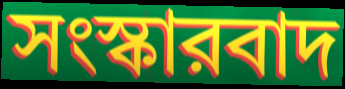
সংস্কারবাদ